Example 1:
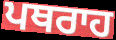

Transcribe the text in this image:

ਪਥਰਾਹ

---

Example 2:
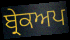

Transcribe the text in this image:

ਬ੍ਰੇਕਅਪ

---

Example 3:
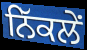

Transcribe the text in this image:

ਨਿੱਕਲੇਂ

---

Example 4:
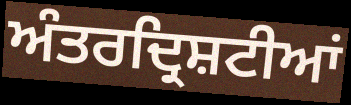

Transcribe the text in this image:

ਅੰਤਰਦ੍ਰਿਸ਼ਟੀਆਂ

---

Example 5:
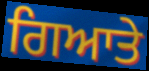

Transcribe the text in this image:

ਗਿਆਤੇ